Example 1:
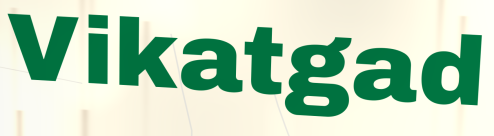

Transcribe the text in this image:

Vikatgad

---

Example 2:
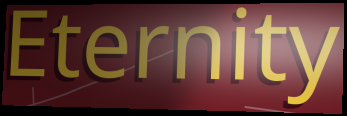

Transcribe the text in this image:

Eternity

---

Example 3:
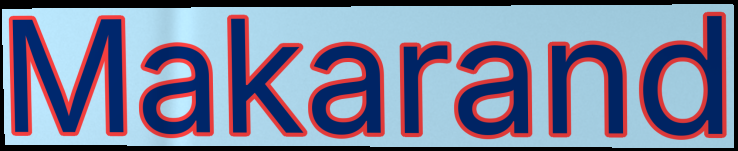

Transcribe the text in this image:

Makarand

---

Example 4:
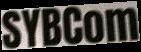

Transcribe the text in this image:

SYBCom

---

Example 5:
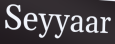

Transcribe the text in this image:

Seyyaar